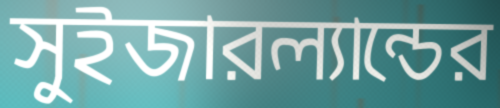
সুইজারল্যান্ডের